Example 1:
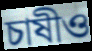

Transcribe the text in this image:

চাষীও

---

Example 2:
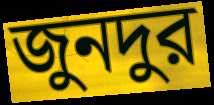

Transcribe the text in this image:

জুনদুর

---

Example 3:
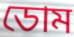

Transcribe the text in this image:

ডোম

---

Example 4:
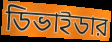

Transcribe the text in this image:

ডিভাইডার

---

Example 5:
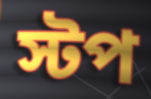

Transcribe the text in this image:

স্টপ